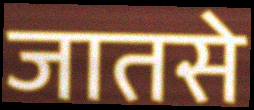
जातसे